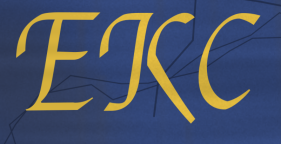
EKC